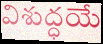
విశుద్ధయే